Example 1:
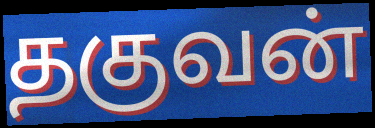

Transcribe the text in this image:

தகுவன்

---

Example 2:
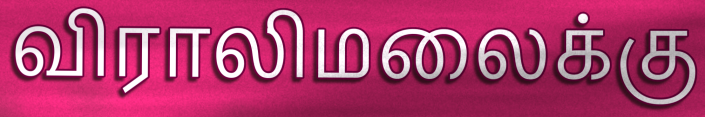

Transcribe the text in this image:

விராலிமலைக்கு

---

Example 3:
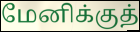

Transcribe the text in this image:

மேனிக்குத்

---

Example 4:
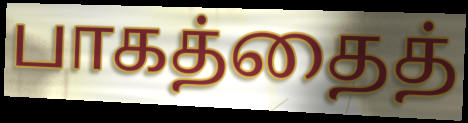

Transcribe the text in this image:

பாகத்தைத்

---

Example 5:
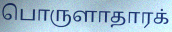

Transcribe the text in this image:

பொருளாதாரக்